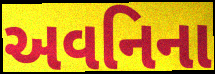
અવનિના